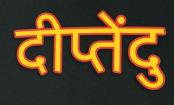
दीप्तेंदु